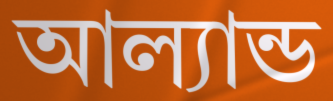
আল্যান্ড